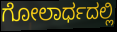
ಗೋಲಾರ್ಧದಲ್ಲಿ